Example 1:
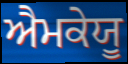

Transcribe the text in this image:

ਐਮਕੇਯੂ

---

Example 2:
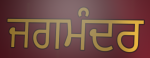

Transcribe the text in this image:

ਜਗਮੰਦਰ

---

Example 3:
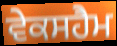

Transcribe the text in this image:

ਵੇਕਸਹੈਮ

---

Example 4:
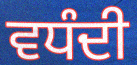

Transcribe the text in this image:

ਵਧੰਦੀ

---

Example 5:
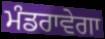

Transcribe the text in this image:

ਮੰਡਰਾਵੇਗਾ